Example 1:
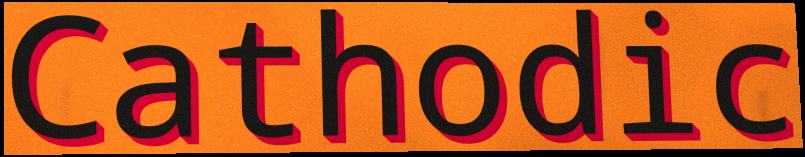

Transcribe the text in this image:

Cathodic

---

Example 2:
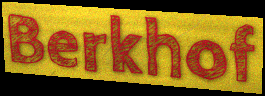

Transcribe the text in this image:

Berkhof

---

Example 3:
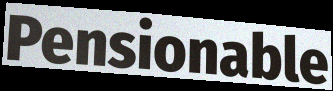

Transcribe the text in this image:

Pensionable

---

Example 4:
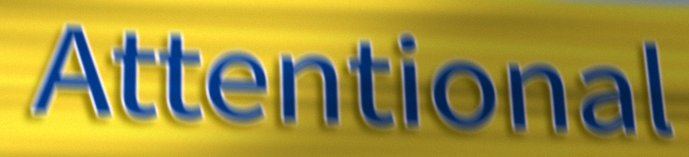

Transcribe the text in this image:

Attentional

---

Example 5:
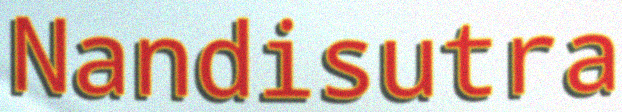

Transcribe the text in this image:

Nandisutra